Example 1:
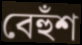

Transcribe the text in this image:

বেহুঁশ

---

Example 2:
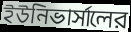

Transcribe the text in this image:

ইউনিভার্সালের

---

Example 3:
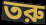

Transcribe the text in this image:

তরু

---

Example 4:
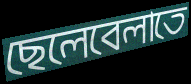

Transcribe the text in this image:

ছেলেবেলাতে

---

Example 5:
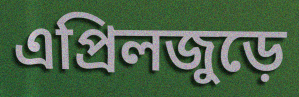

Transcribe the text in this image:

এপ্রিলজুড়ে